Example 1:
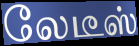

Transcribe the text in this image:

லேடீஸ்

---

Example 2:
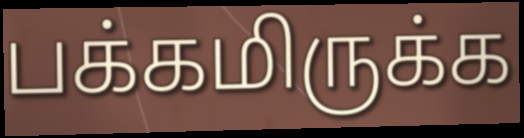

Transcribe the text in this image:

பக்கமிருக்க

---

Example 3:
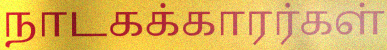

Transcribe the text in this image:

நாடகக்காரர்கள்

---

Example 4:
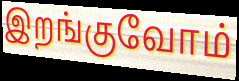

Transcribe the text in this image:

இறங்குவோம்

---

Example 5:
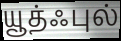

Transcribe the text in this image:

யூத்ஃபுல்